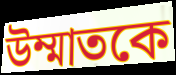
উম্মাতকে